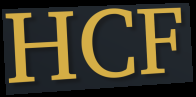
HCF